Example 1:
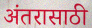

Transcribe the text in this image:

अंतरासाठी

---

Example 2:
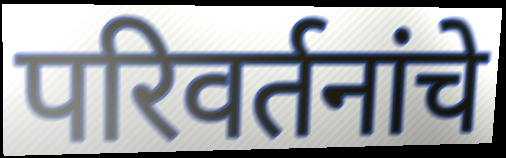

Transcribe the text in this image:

परिवर्तनांचे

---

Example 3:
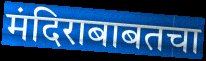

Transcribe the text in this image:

मंदिराबाबतचा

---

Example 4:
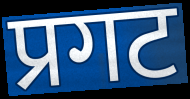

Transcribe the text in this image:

प्रगट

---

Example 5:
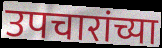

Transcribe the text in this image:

उपचारांच्या